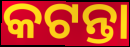
କଟନ୍ତା